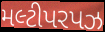
મલ્ટીપરપઝ